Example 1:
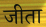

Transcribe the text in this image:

जीता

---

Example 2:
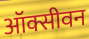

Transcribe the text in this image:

ऑक्सीवन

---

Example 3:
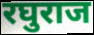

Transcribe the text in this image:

रघुराज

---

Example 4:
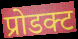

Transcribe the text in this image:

प्रोडक्ट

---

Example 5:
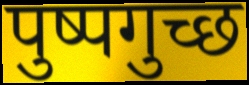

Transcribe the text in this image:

पुष्पगुच्छ